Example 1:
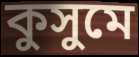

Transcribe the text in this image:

কুসুমে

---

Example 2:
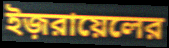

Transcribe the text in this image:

ইজ়রায়েলের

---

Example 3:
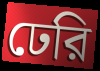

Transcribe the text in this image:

ঢেরি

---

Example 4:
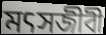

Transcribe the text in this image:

মৎসজীবী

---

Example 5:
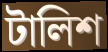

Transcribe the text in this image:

টালিশ